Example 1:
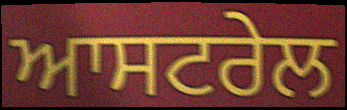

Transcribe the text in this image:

ਆਸਟਰੇਲ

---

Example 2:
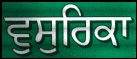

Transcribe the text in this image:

ਵੁਸੁਰਿਕਾ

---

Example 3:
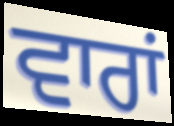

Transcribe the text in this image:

ਵਾਰਾਂ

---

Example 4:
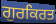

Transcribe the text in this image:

ਗੁਰਕਿਰਤ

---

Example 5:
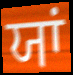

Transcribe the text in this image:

ਯਾਂ